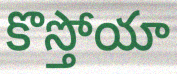
కొస్తోయా